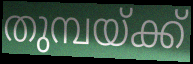
തുമ്പയ്ക്ക്